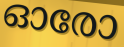
ഓരോ